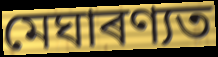
মেঘাৰণ্যত